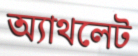
অ্যাথলেট